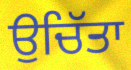
ਉਚਿੱਤਾ